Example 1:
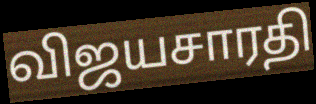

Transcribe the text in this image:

விஜயசாரதி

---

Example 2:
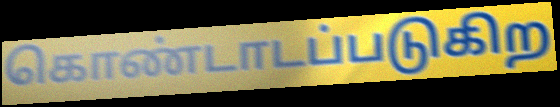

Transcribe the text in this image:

கொண்டாடப்படுகிற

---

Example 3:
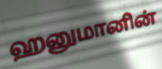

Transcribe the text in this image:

ஹனுமானின்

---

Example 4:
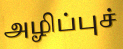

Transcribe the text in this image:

அழிப்புச்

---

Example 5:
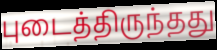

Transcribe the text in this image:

புடைத்திருந்தது